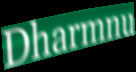
Dharmnu